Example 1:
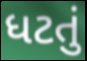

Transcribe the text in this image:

ધટતું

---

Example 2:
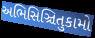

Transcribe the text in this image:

અભિસિઞ્ચિતુકામો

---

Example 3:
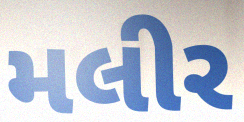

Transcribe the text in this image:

મલીર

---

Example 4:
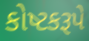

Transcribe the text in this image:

કોષ્ટકરૂપે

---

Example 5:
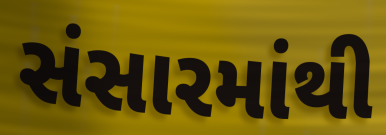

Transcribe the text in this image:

સંસારમાંથી